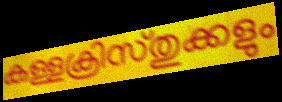
കള്ളക്രിസ്തുക്കളും